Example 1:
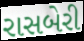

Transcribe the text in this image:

રાસબેરી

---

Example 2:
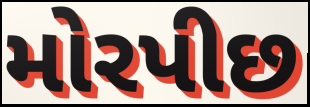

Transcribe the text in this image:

મોરપીછ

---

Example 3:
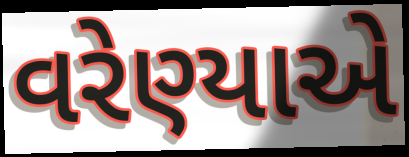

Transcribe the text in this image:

વરેણ્યાએ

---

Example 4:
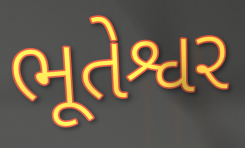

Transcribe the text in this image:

ભૂતેશ્વર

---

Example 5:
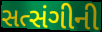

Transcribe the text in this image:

સત્સંગીની